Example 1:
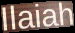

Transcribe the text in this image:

Ilaiah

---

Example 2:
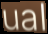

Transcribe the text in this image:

ual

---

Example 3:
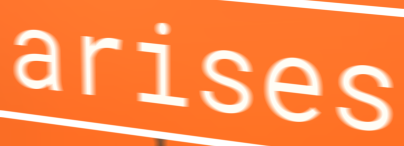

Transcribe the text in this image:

arises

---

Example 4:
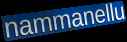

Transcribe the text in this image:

nammanellu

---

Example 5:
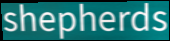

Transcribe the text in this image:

shepherds